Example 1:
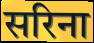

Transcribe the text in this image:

सरिना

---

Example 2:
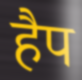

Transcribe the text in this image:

हैप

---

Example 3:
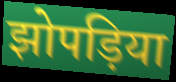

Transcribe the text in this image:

झोपड़िया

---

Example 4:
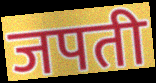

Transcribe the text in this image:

जपती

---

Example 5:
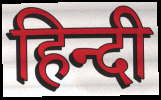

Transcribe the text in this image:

हिन्दी